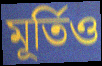
মূৰ্তিও